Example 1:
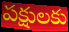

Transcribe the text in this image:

పక్షులకు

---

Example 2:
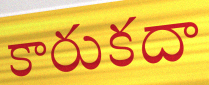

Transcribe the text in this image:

కారుకదా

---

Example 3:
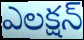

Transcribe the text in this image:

ఎలక్షన్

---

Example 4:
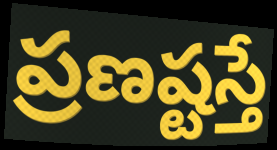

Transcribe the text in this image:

ప్రణష్టస్తే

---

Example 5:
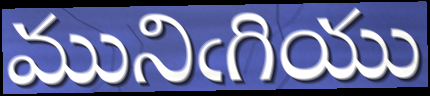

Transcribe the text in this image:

మునిఁగియు